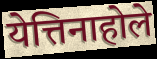
येत्तिनाहोले